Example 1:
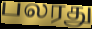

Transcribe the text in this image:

பலரது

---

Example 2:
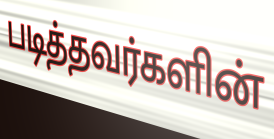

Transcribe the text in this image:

படித்தவர்களின்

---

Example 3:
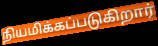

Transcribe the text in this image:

நியமிக்கப்படுகிறார்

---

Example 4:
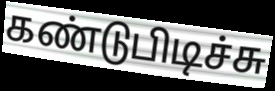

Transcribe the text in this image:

கண்டுபிடிச்சு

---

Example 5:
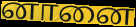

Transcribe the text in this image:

னானை